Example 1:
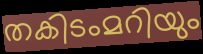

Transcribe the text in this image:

തകിടംമറിയും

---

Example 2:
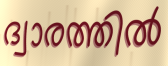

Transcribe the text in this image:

ദ്വാരത്തിൽ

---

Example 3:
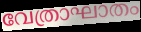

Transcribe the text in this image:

വേത്രാഘാതം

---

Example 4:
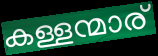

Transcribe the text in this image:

കള്ളന്മാര്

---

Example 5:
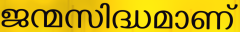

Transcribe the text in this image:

ജന്മസിദ്ധമാണ്